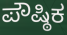
ಪೌಷ್ಠಿಕ